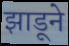
झाडूने